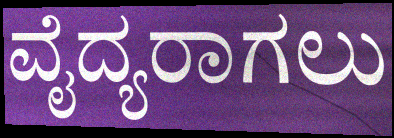
ವೈದ್ಯರಾಗಲು